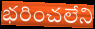
భరించలేని